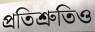
প্ৰতিশ্ৰুতিও